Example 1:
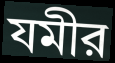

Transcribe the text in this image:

যমীর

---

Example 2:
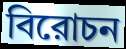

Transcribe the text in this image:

বিরোচন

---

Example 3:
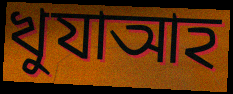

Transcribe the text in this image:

খুযাআহ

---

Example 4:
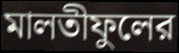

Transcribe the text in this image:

মালতীফুলের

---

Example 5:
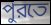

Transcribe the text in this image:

পুরতে